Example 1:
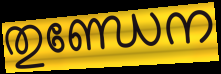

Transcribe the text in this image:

തുണ്ഡേന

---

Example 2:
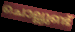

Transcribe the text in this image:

ചൊല്ലുണ്ട്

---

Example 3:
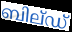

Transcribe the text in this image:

ബില്ഡ്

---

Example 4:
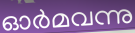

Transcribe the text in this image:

ഓർമവന്നു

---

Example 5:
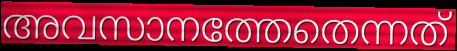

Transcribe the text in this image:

അവസാനത്തേതെന്നത്